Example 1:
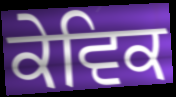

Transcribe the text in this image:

ਕੇਵਿਕ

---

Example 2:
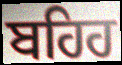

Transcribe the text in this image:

ਬਹਿਹ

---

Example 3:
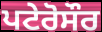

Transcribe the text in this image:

ਪਟੇਰੋਸੌਰ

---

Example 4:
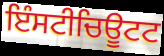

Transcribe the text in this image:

ਇੰਸਟੀਚਿਊਟਟ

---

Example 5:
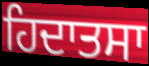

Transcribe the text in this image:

ਹਿਦਾਤਸਾ